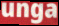
unga